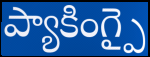
ప్యాకింగ్పై